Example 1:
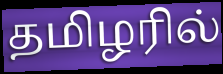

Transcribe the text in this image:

தமிழரில்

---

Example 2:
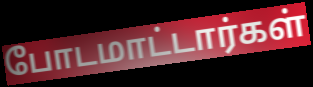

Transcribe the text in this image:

போடமாட்டார்கள்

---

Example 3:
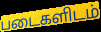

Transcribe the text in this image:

படைகளிடம்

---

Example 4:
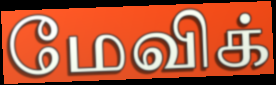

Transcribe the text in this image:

மேவிக்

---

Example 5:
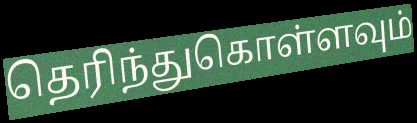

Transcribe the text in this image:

தெரிந்துகொள்ளவும்